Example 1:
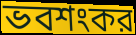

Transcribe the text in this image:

ভবশংকর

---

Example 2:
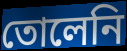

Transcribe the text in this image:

তোলেনি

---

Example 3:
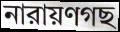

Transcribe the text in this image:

নারায়ণগছ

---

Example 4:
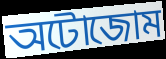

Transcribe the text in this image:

অটোজোম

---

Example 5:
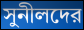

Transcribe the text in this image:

সুনীলদের